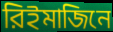
রিইমাজিনে